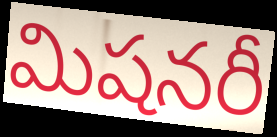
మిషనరీ